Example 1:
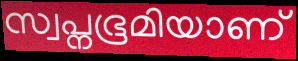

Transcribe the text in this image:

സ്വപ്നഭൂമിയാണ്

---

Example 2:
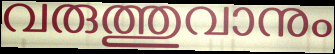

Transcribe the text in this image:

വരുത്തുവാനും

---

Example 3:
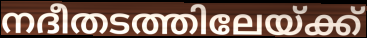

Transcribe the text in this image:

നദീതടത്തിലേയ്ക്ക്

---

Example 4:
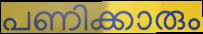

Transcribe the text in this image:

പണിക്കാരും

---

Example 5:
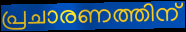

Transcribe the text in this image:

പ്രചാരണത്തിന്